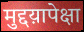
मुद्दय़ापेक्षा